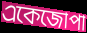
একেজোপা